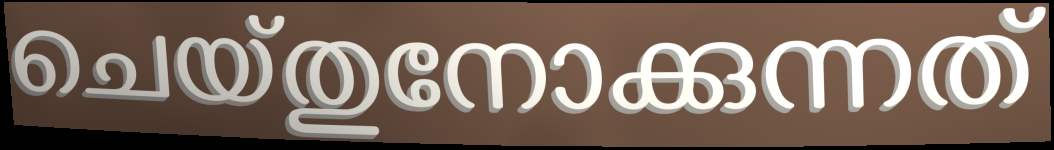
ചെയ്തുനോക്കുന്നത്